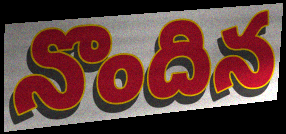
నొందిన